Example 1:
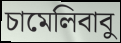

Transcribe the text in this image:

চামেলিবাবু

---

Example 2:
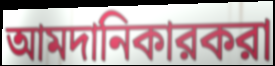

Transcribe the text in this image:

আমদানিকারকরা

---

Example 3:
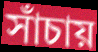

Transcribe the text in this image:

সাঁচায়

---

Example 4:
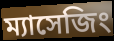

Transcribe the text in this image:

ম্যাসেজিং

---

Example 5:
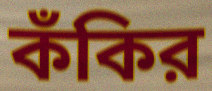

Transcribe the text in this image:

কঁকির